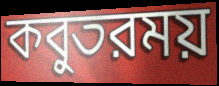
কবুতরময়